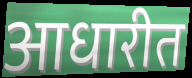
आधारीत